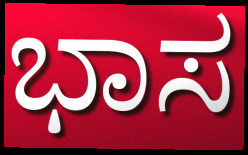
ಭಾಸ